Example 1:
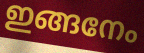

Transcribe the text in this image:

ഇങ്ങനേം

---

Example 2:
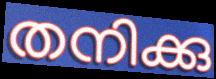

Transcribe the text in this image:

തനിക്കു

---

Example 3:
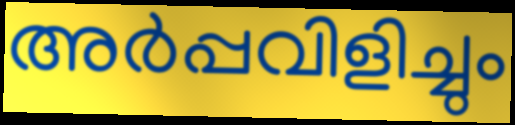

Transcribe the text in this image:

അർപ്പവിളിച്ചും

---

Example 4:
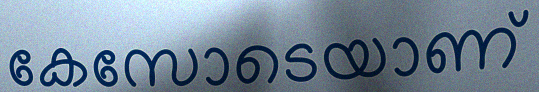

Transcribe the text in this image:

കേസോടെയാണ്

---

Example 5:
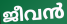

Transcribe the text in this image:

ജീവൻ